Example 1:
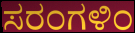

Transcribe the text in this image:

ಸರಂಗಳಿಂ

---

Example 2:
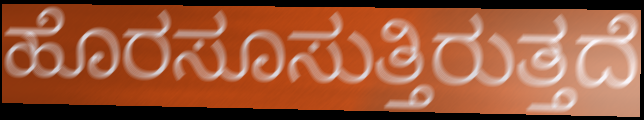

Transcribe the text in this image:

ಹೊರಸೂಸುತ್ತಿರುತ್ತದೆ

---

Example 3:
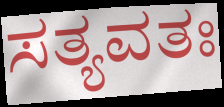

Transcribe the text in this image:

ಸತ್ಯವತಃ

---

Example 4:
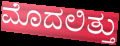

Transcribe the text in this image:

ಮೊದಲಿತ್ತು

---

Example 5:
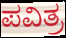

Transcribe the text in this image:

ಪವಿತ್ರ